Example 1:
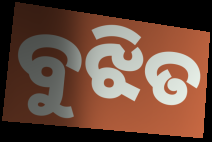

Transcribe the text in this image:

ବୁଝିତ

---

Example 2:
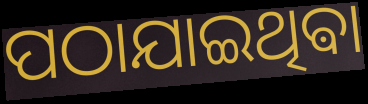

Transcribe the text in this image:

ପଠାଯାଇଥିଵା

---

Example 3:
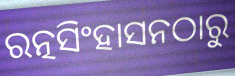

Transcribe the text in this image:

ରତ୍ନସିଂହାସନଠାରୁ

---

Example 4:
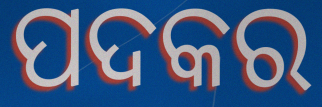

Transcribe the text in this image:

ପଦକର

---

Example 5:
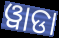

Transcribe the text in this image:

ୱାଡା